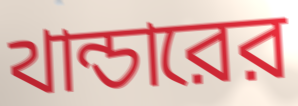
থান্ডারের